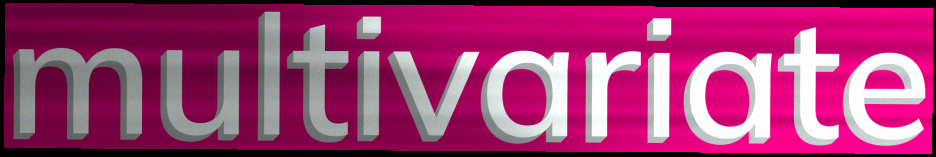
multivariate